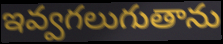
ఇవ్వగలుగుతాను